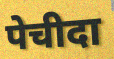
पेचीदा